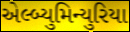
એલ્બ્યુમિન્યુરિયા